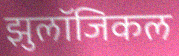
झुलॉजिकल